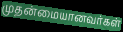
முதன்மையானவர்கள்